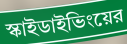
স্কাইডাইভিংয়ের